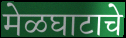
मेळघाटाचे